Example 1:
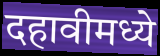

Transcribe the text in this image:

दहावीमध्ये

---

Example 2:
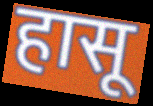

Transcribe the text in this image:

हासू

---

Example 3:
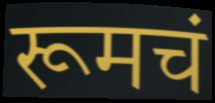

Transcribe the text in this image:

रूमचं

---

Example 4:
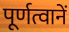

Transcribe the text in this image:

पूर्णत्वानें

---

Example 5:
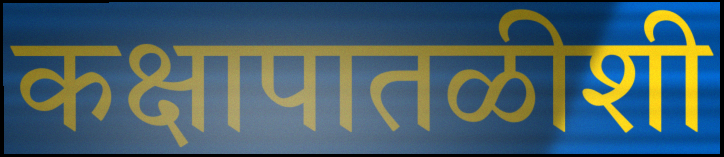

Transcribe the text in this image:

कक्षापातळीशी